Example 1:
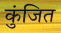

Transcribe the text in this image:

कुंजित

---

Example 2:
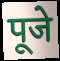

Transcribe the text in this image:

पूजे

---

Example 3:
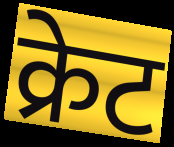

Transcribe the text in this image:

क्रेट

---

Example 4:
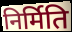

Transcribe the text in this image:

निर्मिति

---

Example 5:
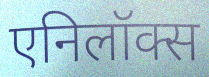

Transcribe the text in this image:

एनिलॉक्स